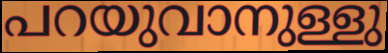
പറയുവാനുള്ളു